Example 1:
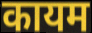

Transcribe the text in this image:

कायम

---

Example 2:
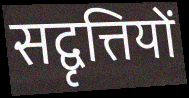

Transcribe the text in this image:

सद्वृत्तियों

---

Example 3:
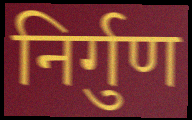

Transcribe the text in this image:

निर्गुण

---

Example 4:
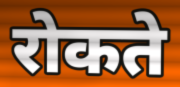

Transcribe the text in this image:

रोकते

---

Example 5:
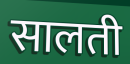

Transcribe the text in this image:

सालती